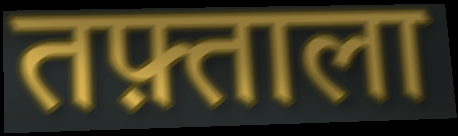
तफ़्ताला